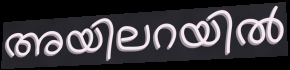
അയിലറയിൽ